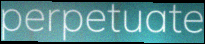
perpetuate